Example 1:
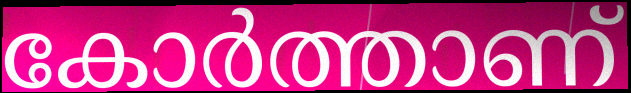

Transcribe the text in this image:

കോർത്താണ്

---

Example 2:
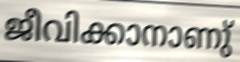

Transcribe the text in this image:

ജീവിക്കാനാണു്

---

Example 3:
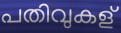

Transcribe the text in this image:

പതിവുകള്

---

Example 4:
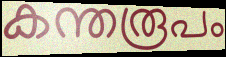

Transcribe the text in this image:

കന്തരൂപം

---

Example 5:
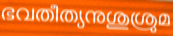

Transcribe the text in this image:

ഭവതീത്യനുശുശ്രുമ